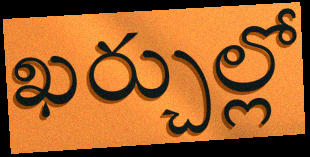
ఖర్చుల్లో